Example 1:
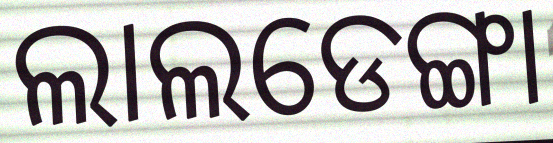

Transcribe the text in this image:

ଲାଲଡେଙ୍ଗା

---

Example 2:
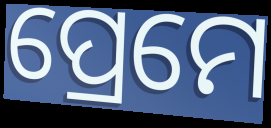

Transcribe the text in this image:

ପ୍ରେମେ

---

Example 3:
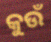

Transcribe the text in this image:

କୁଉଁ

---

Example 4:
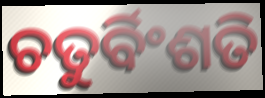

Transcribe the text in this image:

ଚତୁର୍ବିଂଶତି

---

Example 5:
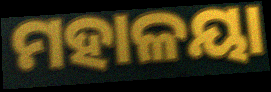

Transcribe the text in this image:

ମହାଳୟା